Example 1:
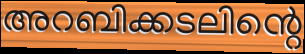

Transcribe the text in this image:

അറബിക്കടലിന്റെ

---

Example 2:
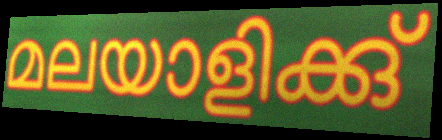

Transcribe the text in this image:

മലയാളിക്കു്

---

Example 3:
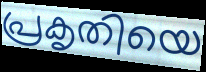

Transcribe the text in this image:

പ്രകൃതിയെ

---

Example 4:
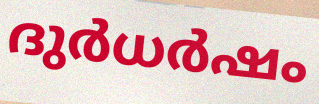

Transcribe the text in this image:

ദുർധർഷം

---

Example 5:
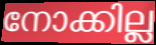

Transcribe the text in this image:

നോക്കില്ല